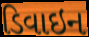
ડિવાઇન